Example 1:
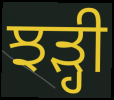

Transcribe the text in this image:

ਝੜ੍ਹੀ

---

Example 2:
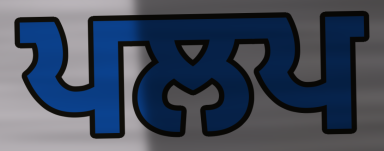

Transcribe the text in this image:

ਪਲਪ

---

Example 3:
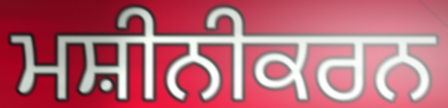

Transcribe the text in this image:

ਮਸ਼ੀਨੀਕਰਨ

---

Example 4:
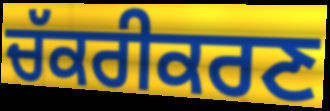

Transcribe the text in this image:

ਚੱਕਰੀਕਰਣ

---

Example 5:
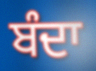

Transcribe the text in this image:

ਬੰਦਾ